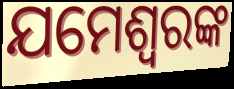
ଯମେଶ୍ୱରଙ୍କ